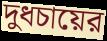
দুধচায়ের